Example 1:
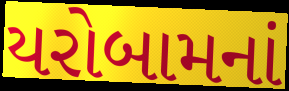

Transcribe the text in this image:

યરોબામનાં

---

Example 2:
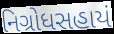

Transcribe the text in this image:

નિગ્રોધસહાયં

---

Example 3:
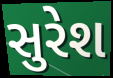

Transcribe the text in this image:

સુરેશ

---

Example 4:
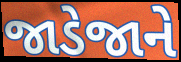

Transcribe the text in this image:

જાડેજાને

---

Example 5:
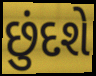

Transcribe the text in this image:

છુંદશે